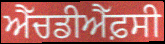
ਐੱਚਡੀਐੱਫ਼ਸੀ